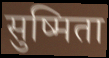
सुष्मिता